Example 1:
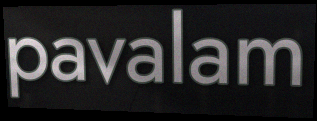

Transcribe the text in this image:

pavalam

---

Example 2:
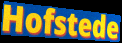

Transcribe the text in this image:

Hofstede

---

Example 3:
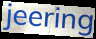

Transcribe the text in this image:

jeering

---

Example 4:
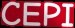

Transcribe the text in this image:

CEPI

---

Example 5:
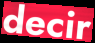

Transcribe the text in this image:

decir